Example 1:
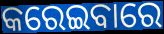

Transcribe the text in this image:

କରେଇବାରେ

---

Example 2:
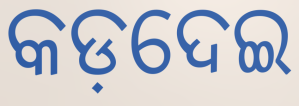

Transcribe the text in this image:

କଡ଼ଦେଇ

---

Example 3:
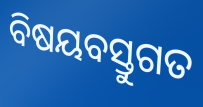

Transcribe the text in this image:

ବିଷୟବସ୍ତୁଗତ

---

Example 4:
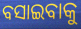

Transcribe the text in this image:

ବସାଇବାକୁ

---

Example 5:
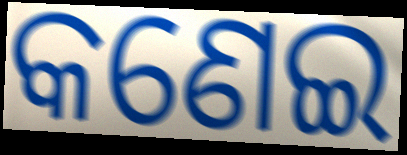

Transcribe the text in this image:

କଣେଇ